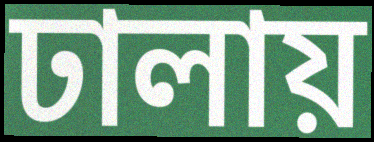
ঢালায়